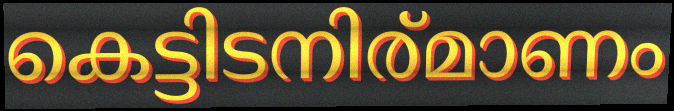
കെട്ടിടനിര്മാണം